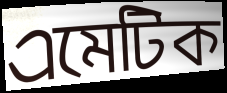
এমেটিক